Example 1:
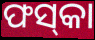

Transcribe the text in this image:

ଫସ୍‌କା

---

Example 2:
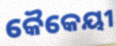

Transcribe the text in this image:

କୈକେୟୀ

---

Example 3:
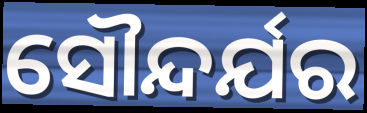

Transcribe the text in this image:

ସୌନ୍ଦର୍ଯର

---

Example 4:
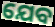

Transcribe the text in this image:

ଯେବ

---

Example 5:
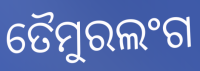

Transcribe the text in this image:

ତୈମୁରଲଂଗ